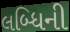
લબ્ધિની